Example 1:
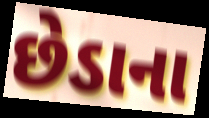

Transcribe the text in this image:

છેડાના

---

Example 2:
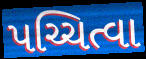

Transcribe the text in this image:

પચ્ચિત્વા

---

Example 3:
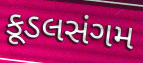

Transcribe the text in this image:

કૂડલસંગમ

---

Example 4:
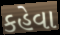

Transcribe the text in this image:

કહેવા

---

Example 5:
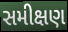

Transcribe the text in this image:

સમીક્ષણ